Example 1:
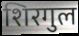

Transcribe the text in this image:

शिरगुल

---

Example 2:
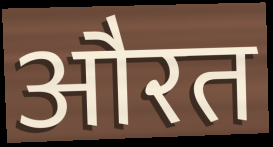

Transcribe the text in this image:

औरत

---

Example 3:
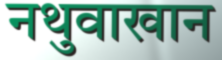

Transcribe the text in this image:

नथुवाखान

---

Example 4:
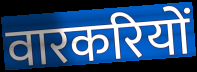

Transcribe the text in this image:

वारकरियों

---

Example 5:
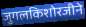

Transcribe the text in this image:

जुगलकिशोरजीने